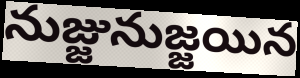
నుజ్జునుజ్జయిన